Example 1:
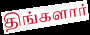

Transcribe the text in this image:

திங்களார்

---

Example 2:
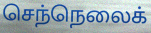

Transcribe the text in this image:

செந்நெலைக்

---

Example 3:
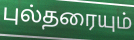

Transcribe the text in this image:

புல்தரையும்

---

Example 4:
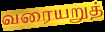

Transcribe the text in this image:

வரையறுத்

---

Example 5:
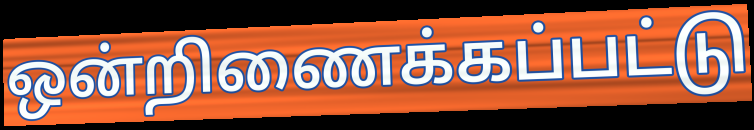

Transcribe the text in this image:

ஒன்றிணைக்கப்பட்டு